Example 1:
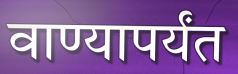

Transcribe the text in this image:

वाण्यापर्यंत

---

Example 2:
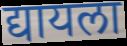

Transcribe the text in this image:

द्यायला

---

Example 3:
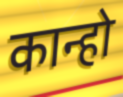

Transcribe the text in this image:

कान्हो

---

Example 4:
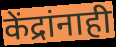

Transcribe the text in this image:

केंद्रांनाही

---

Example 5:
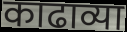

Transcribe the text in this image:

काढाव्या